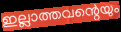
ഇല്ലാത്തവന്റെയും